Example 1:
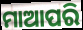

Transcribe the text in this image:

ମାଆପରି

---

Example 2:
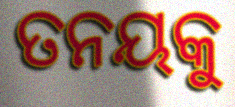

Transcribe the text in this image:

ତନୟକୁ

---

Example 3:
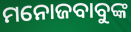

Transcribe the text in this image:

ମନୋଜବାବୁଙ୍କ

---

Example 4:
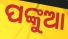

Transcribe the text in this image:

ପଙ୍କୁଆ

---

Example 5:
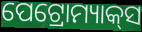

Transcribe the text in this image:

ପେଟ୍ରୋମ୍ୟାକ୍‌ସ